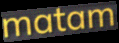
matam